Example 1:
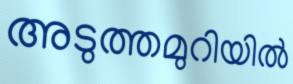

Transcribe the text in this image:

അടുത്തമുറിയിൽ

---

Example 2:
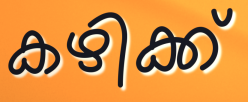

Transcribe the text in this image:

കഴിക്ക്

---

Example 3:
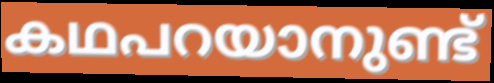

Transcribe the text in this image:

കഥപറയാനുണ്ട്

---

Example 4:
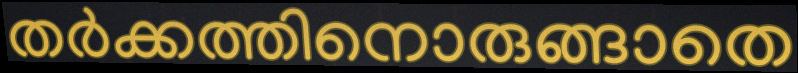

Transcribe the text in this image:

തർക്കത്തിനൊരുങ്ങാതെ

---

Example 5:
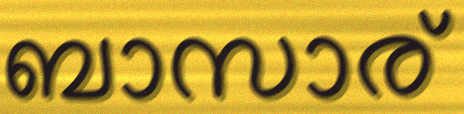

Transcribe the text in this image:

ബാസാര്